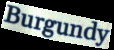
Burgundy